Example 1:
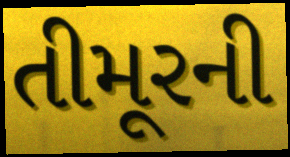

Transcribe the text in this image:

તીમૂરની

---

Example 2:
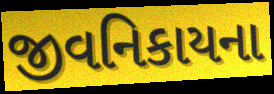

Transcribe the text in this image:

જીવનિકાયના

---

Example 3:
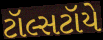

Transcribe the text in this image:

ટૉલ્સટૉયે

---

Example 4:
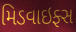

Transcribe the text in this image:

મિડવાઇફ્સ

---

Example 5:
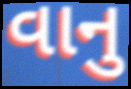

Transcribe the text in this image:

વાનુ